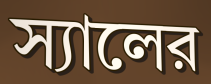
স্যালের